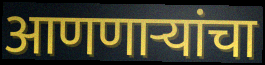
आणणाऱ्यांचा